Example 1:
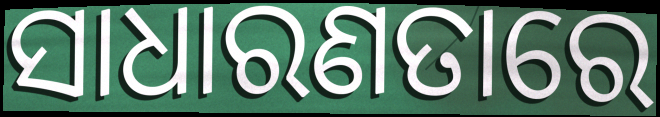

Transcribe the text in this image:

ସାଧାରଣତାରେ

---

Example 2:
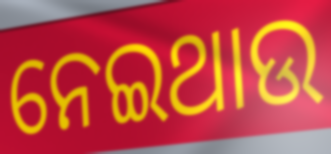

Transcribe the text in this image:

ନେଇଥାଉ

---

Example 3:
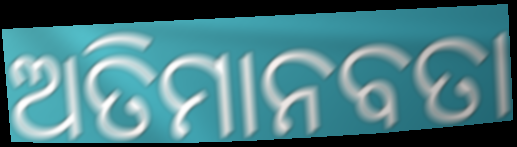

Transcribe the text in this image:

ଅତିମାନବତା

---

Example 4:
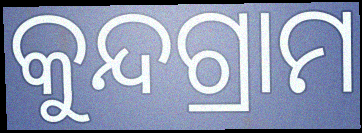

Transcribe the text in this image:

କୁନ୍ଦଗ୍ରାମ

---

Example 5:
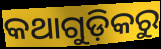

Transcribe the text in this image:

କଥାଗୁଡ଼ିକରୁ